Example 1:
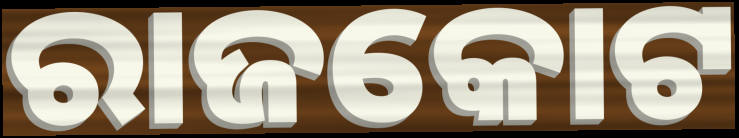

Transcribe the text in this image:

ରାଜକୋଟ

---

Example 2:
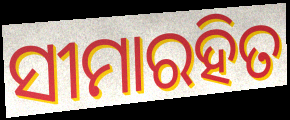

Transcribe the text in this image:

ସୀମାରହିତ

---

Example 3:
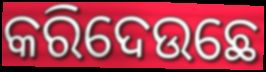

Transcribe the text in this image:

କରିଦେଉଛେ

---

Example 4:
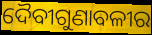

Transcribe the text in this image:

ଦୈବୀଗୁଣାବଳୀର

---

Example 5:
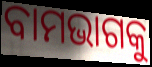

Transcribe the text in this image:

ବାମଭାଗକୁ